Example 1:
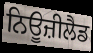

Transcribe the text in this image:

ਨਿਊਜ਼ੀਲੈਡ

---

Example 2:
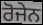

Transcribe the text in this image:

ਰੋਜੇਨ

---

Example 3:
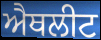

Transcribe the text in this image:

ਐਥਲੀਟ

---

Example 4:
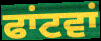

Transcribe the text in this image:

ਫਾਂਟਵਾਂ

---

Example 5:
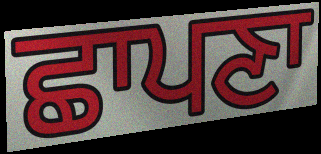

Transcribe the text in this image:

ਛਾਪਣਾ